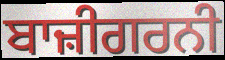
ਬਾਜ਼ੀਗਰਨੀ